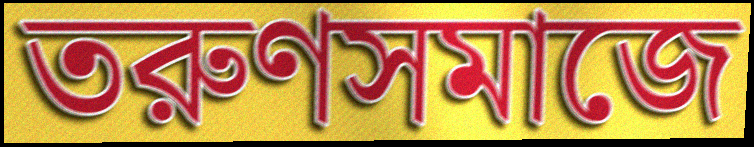
তরুণসমাজে